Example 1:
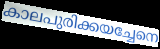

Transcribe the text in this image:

കാലപുരിക്കയച്ചേനെ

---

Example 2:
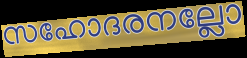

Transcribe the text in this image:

സഹോദരനല്ലോ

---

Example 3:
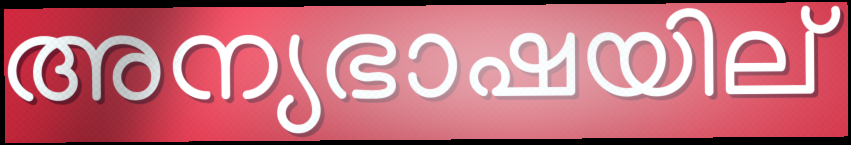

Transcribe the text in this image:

അന്യഭാഷയില്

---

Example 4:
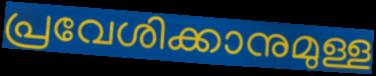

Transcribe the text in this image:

പ്രവേശിക്കാനുമുള്ള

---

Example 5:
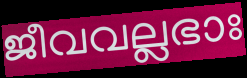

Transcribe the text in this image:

ജീവവല്ലഭാഃ